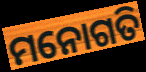
ମନୋଗତି